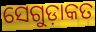
ସେଗୁଡ଼ାକତ